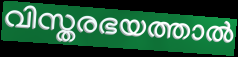
വിസ്തരഭയത്താൽ